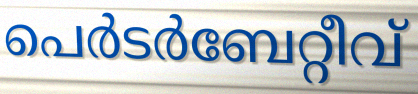
പെർടർബേറ്റീവ്